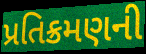
પ્રતિક્રમણની